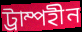
ট্রাম্পহীন